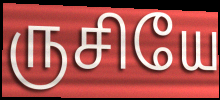
ருசியே